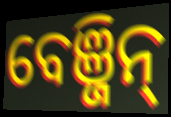
ବେଞ୍ଜିନ୍